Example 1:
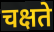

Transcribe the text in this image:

चक्षते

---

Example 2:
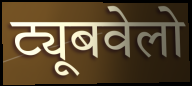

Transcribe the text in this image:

ट्यूबवेलो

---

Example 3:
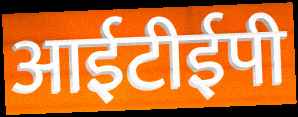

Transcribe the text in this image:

आईटीईपी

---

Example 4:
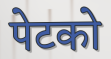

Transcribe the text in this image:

पेटको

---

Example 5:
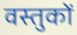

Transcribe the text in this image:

वस्तुकों